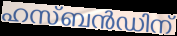
ഹസ്ബൻഡിന്